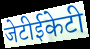
जेटीईकेटी